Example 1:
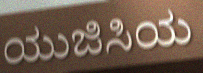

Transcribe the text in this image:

ಯುಜಿಸಿಯ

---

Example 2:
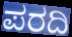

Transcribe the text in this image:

ಪರದಿ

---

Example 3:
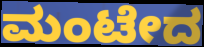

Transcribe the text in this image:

ಮಂಟೇದ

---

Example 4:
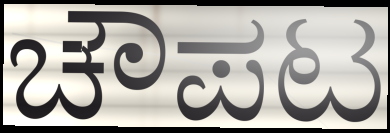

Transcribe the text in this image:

ಚೌಪಟ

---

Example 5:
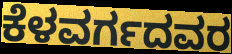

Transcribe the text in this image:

ಕೆಳವರ್ಗದವರ